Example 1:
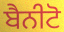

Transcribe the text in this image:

ਬੈਨੀਟੋ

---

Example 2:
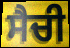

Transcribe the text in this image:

ਸੈਚੀ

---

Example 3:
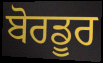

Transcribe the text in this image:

ਬੋਰਡੂਰ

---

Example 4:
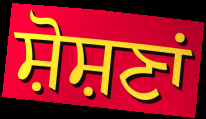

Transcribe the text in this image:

ਸ਼ੋਸ਼ਣਾਂ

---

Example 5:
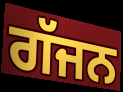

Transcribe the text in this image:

ਗੱਜਨ